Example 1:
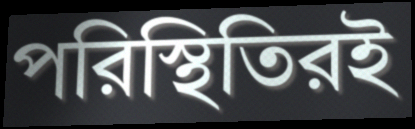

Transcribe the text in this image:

পরিস্থিতিরই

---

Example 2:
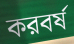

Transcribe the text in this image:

করবর্ষ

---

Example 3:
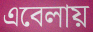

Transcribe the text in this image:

এবেলায়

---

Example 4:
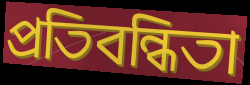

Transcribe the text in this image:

প্রতিবন্ধিতা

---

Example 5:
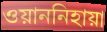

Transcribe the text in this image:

ওয়াননিহায়া